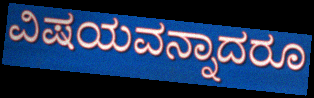
ವಿಷಯವನ್ನಾದರೂ